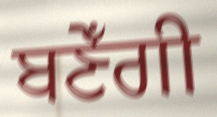
ਬਣੇਁਗੀ